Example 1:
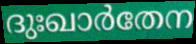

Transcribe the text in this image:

ദുഃഖാർതേന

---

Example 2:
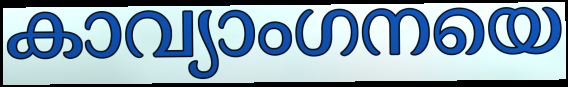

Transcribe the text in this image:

കാവ്യാംഗനയെ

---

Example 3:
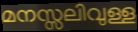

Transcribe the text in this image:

മനസ്സലിവുള്ള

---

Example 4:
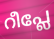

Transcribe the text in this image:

റീപ്ലേ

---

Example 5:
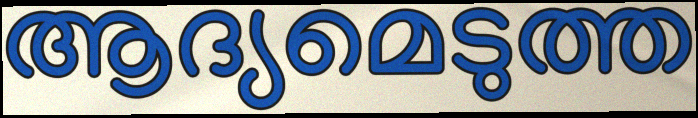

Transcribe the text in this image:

ആദ്യമെടുത്ത